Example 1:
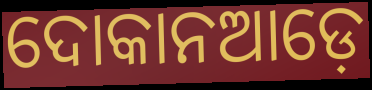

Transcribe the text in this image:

ଦୋକାନଆଡ଼େ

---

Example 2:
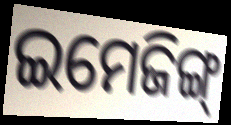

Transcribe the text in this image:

ଇମେଜିଙ୍ଗ୍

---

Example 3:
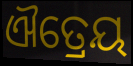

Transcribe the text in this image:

ଐତ୍ରେୟ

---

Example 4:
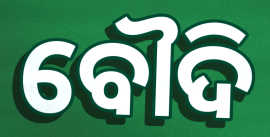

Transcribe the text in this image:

ବୌଦି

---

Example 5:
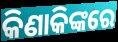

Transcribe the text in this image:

କିଣାକିଙ୍କରେ